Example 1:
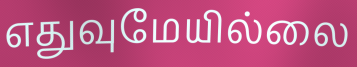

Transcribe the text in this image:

எதுவுமேயில்லை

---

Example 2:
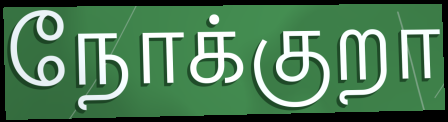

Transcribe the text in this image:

நோக்குறா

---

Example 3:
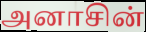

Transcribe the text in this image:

அனாசின்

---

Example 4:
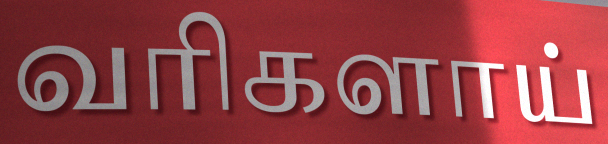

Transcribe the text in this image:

வரிகளாய்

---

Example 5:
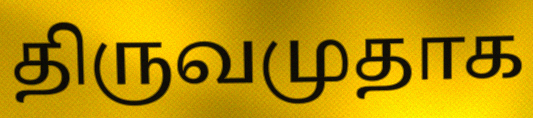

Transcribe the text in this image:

திருவமுதாக